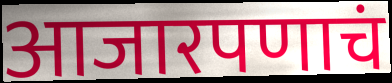
आजारपणाचं